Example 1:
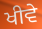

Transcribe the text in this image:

ਖੀਵੇ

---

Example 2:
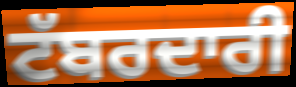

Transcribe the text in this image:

ਟੱਬਰਦਾਰੀ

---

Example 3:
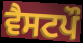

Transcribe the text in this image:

ਵੈਸਟਪੌ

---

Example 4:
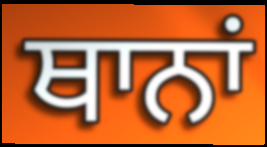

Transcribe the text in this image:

ਥਾਨਾਂ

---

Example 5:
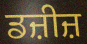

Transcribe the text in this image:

ਡਜ਼ੀਜ਼